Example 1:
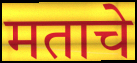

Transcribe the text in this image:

मताचे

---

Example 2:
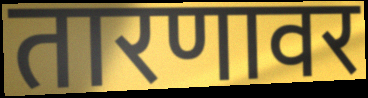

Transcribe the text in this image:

तारणावर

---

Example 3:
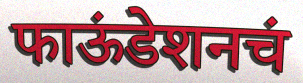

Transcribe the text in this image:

फाऊंडेशनचं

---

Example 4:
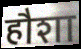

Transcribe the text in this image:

हौशा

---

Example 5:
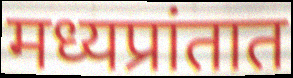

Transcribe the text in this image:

मध्यप्रांतात